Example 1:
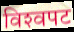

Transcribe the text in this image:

विश्वपट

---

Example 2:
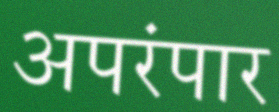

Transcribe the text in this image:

अपरंपार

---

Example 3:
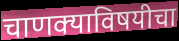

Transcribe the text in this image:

चाणक्याविषयीचा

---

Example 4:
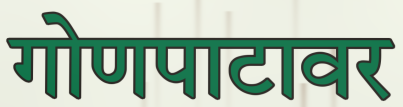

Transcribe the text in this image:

गोणपाटावर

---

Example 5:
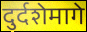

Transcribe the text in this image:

दुर्दशेमागे